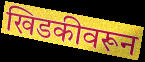
खिडकीवरून